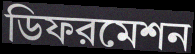
ডিফরমেশন